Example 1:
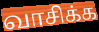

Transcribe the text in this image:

வாசிக்க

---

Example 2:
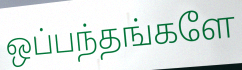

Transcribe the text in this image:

ஒப்பந்தங்களே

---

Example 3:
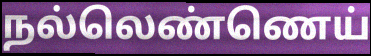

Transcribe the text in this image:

நல்லெண்ணெய்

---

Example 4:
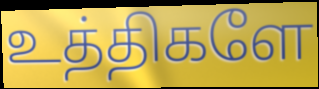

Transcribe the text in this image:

உத்திகளே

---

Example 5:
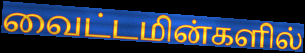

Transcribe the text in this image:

வைட்டமின்களில்